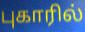
புகாரில்